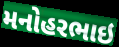
મનોહરભાઇ